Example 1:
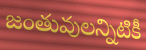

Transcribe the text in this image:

జంతువులన్నిటికీ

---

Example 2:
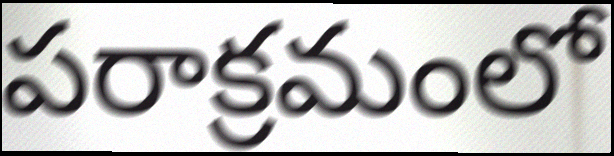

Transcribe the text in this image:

పరాక్రమంలో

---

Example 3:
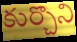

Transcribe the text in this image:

కుర్చొని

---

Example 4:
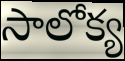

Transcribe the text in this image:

సాలోక్య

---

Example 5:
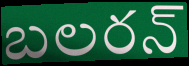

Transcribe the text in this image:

బలరన్